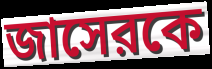
জাসেরকে